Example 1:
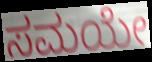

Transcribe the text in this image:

ಸಮಯೇ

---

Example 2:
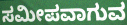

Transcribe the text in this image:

ಸಮೀಪವಾಗುವ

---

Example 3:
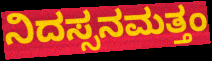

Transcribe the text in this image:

ನಿದಸ್ಸನಮತ್ತಂ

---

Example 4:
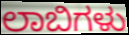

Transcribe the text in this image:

ಲಾಬಿಗಳು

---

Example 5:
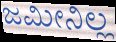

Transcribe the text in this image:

ಜಮೀನಿಲ್ಲ